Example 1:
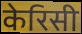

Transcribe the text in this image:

केरिसी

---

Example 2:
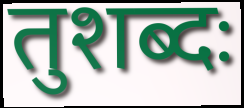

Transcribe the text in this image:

तुशब्दः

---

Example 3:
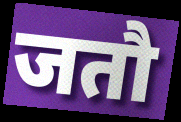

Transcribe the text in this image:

जतौ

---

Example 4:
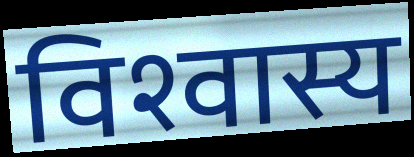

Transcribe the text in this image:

विश्वास्य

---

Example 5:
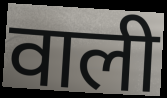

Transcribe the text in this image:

वाली